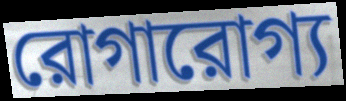
রোগারোগ্য